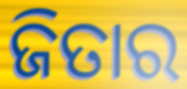
ଜିତାର